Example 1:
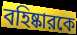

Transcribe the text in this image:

বহিষ্কারকে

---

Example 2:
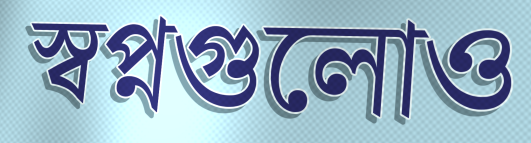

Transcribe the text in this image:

স্বপ্নগুলোও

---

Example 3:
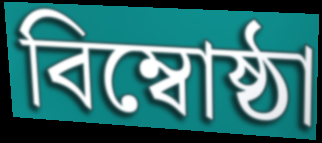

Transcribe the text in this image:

বিম্বোষ্ঠা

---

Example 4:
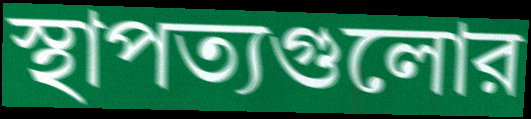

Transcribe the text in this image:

স্থাপত্যগুলোর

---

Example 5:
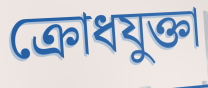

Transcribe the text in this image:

ক্রোধযুক্তা